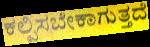
ಕಲ್ಪಿಸಬೇಕಾಗುತ್ತದೆ